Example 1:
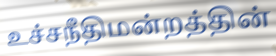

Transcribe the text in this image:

உச்சநீதிமன்றத்தின்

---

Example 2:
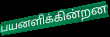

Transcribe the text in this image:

பயனளிக்கின்றன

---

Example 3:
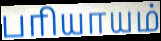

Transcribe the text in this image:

பரியாயம்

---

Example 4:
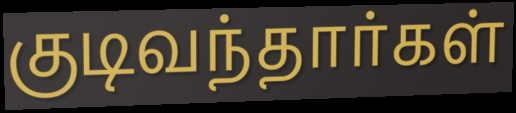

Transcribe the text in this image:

குடிவந்தார்கள்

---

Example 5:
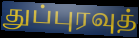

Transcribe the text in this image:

துப்புரவுத்